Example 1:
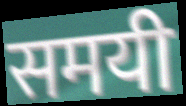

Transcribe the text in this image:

समयी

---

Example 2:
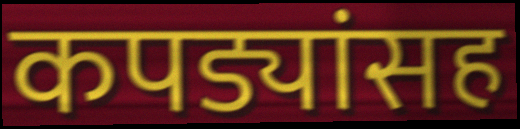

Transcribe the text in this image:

कपड्यांसह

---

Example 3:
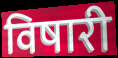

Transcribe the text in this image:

विषारी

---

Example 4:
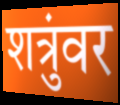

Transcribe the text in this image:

शत्रुंवर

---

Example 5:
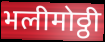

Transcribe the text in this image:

भलीमोठ्ठी